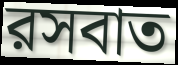
রসবাত